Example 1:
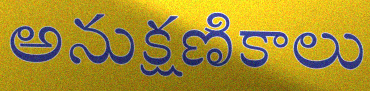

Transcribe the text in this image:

అనుక్షణికాలు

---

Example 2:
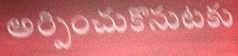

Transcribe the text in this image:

అర్పించుకొనుటకు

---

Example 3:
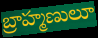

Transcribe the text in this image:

బ్రాహ్మణులూ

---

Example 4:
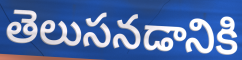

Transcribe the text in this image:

తెలుసనడానికి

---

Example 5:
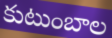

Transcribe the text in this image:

కుటుంబాల